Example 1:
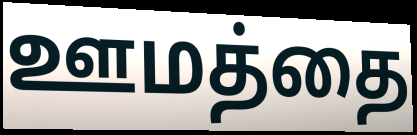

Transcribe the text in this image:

ஊமத்தை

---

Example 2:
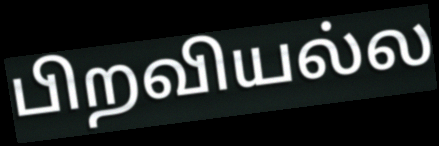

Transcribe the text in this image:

பிறவியல்ல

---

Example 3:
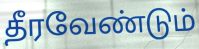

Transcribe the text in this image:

தீரவேண்டும்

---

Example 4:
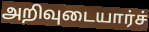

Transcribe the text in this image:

அறிவுடையார்ச்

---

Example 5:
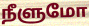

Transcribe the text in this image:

நீளுமோ